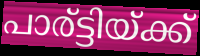
പാര്ട്ടിയ്ക്ക്